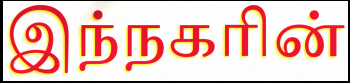
இந்நகரின்